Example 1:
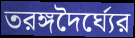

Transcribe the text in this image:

তরঙ্গদৈর্ঘ্যের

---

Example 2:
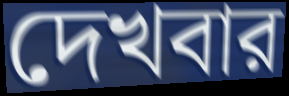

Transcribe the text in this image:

দেখবার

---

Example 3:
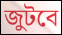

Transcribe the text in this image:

জুটবে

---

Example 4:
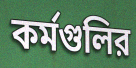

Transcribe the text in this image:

কর্মগুলির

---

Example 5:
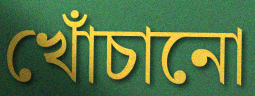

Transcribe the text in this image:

খোঁচানো